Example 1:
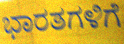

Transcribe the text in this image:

ಭಾರತಗಳಿಗೆ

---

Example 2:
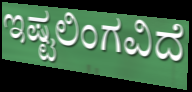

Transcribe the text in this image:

ಇಷ್ಟಲಿಂಗವಿದೆ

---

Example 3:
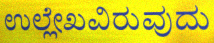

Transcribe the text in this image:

ಉಲ್ಲೇಖವಿರುವುದು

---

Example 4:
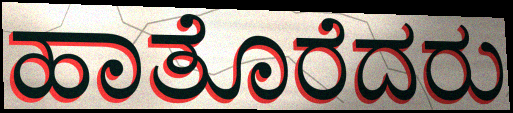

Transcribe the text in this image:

ಹಾತೊರೆದರು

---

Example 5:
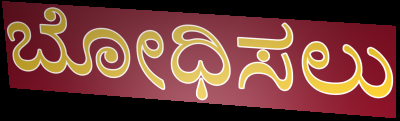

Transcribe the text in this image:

ಬೋಧಿಸಲು